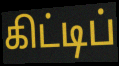
கிட்டிப்